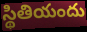
స్థితియందు